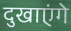
दुखाएंगे